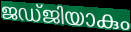
ജഡ്ജിയാകും